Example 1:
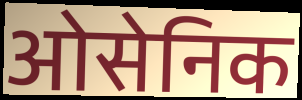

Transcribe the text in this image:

ओसेनिक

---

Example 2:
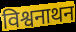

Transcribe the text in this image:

विश्वनाथन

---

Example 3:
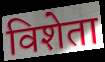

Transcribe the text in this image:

विशेता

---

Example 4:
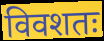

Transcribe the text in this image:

विवशतः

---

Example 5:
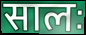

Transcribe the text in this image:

सालः